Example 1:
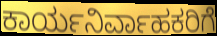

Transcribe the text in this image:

ಕಾರ್ಯನಿರ್ವಾಹಕರಿಗೆ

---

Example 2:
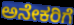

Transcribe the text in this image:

ಅನೇಕರಿಗೆ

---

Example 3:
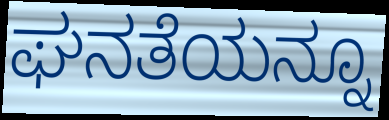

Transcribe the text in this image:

ಘನತೆಯನ್ನೂ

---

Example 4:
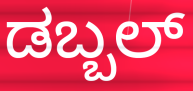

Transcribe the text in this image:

ಡಬ್ಬಲ್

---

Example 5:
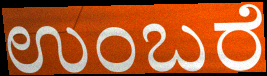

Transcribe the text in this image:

ಉಂಬರೆ